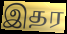
இதர